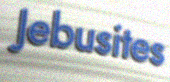
Jebusites